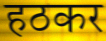
हठकर